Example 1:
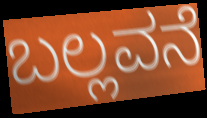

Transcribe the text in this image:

ಬಲ್ಲವನೆ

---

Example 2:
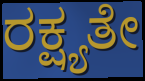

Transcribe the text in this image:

ರಕ್ಷ್ಯತೇ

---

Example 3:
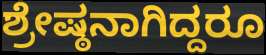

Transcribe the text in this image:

ಶ್ರೇಷ್ಠನಾಗಿದ್ದರೂ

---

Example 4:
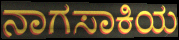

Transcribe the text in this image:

ನಾಗಸಾಕಿಯ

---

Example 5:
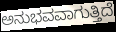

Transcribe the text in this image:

ಅನುಭವವಾಗುತ್ತಿದೆ